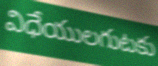
విధేయులగుటకు